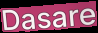
Dasare